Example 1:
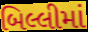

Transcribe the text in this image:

બિલ્લીમાં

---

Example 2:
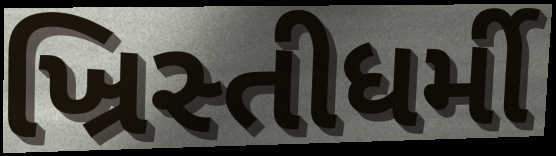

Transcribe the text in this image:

ખ્રિસ્તીધર્મી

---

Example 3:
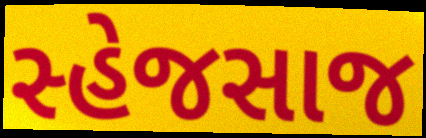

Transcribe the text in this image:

સ્હેજસાજ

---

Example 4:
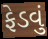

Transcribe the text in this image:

ફેડવું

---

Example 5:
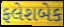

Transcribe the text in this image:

ફલેશબેક